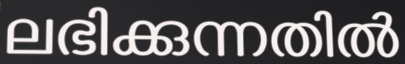
ലഭിക്കുന്നതിൽ